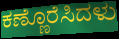
ಕಣ್ಣೊರೆಸಿದಳು